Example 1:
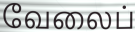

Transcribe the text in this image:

வேலைப்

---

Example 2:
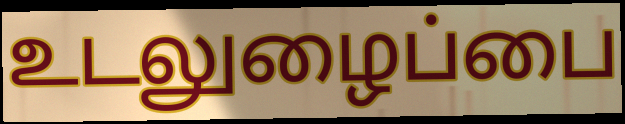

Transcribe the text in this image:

உடலுழைப்பை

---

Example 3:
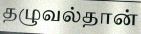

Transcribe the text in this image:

தழுவல்தான்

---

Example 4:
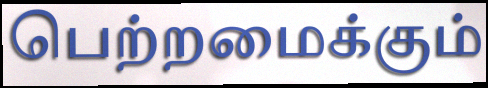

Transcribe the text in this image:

பெற்றமைக்கும்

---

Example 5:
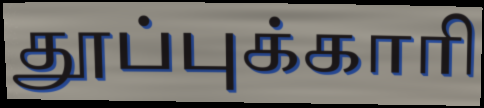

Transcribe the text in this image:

தூப்புக்காரி